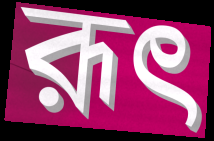
রূৎ